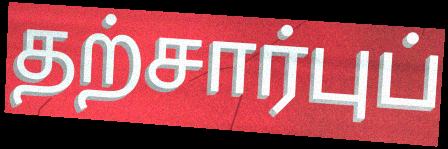
தற்சார்புப்